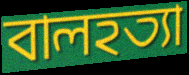
বালহত্যা